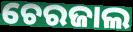
ଚେରଜାଲ